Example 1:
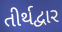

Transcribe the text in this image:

તીર્થદ્વાર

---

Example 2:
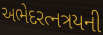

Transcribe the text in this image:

અભેદરત્નત્રયની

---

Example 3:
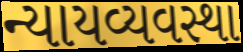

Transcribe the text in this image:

ન્યાયવ્યવસ્થા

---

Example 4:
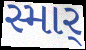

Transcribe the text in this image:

સ્માર્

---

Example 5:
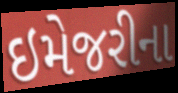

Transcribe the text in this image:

ઇમેજરીના